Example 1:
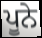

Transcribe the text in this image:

ਪੂਨੇ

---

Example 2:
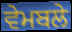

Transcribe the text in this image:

ਵੇਮਬਲੇ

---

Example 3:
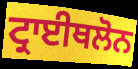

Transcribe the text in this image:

ਟ੍ਰਾਈਥਲੋਨ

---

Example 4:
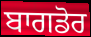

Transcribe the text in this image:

ਬਾਗਡੋਰ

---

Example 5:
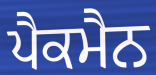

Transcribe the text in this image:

ਪੈਕਮੈਨ